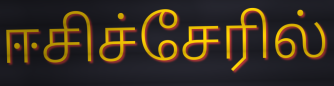
ஈசிச்சேரில்